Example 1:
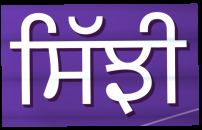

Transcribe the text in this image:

ਸਿੱਝੀ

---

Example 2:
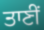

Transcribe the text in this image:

ਤਾਣੀਂ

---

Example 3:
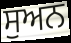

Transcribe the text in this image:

ਸੁਅਨ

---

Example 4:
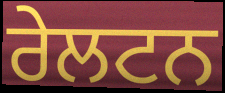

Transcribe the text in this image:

ਰੇਲਟਨ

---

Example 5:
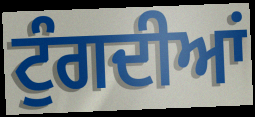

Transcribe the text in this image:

ਟੁੰਗਦੀਆਂ